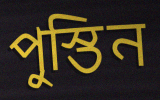
পুস্তিন